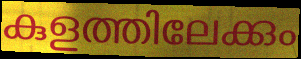
കുളത്തിലേക്കും